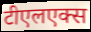
टीएलएक्स